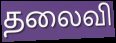
தலைவி